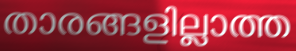
താരങ്ങളില്ലാത്ത